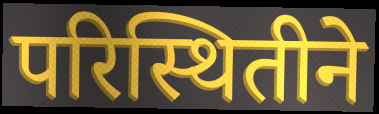
परिस्थितीने